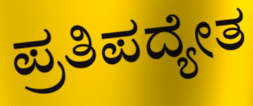
ಪ್ರತಿಪದ್ಯೇತ